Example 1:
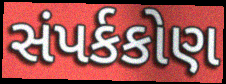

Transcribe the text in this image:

સંપર્કકોણ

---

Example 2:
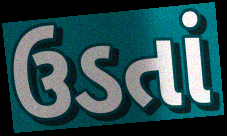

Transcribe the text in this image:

ઉડતાં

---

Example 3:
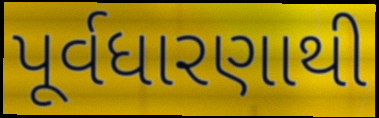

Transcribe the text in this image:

પૂર્વધારણાથી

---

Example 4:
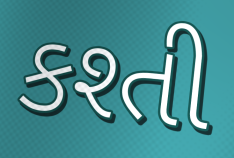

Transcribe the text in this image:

કશ્તી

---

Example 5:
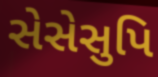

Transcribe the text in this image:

સેસેસુપિ